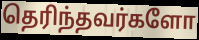
தெரிந்தவர்களோ